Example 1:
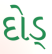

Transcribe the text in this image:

દોડ્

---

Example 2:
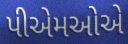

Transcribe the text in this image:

પીએમઓએ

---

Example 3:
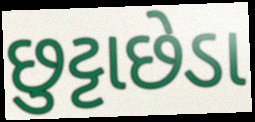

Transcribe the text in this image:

છુટ્ટાછેડા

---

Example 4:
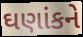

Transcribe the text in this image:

ઘણાંકને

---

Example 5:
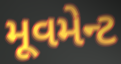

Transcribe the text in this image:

મૂવમેન્ટ